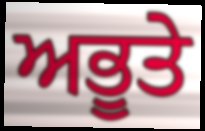
ਅਭੂਤੇ